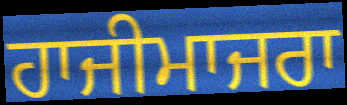
ਹਾਜੀਮਾਜਰਾ